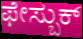
ಫೇಸ್ಬುಕ್